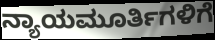
ನ್ಯಾಯಮೂರ್ತಿಗಳಿಗೆ